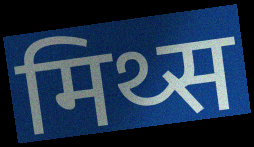
मिथ्स